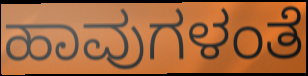
ಹಾವುಗಳಂತೆ